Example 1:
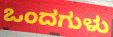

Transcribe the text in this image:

ಒಂದಗುಳು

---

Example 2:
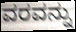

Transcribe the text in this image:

ವರವನ್ನು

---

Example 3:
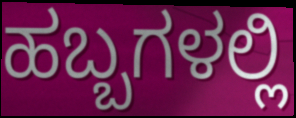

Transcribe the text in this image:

ಹಬ್ಬಗಳಲ್ಲಿ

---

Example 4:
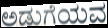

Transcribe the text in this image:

ಅಡುಗೆಯವ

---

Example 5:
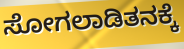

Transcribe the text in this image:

ಸೋಗಲಾಡಿತನಕ್ಕೆ